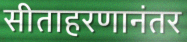
सीताहरणानंतर